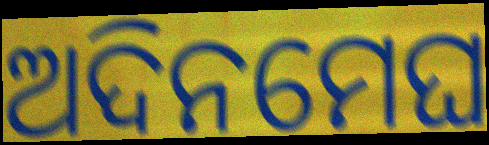
ଅଦିନମେଘ